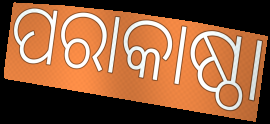
ପରାକାଷ୍ଠା